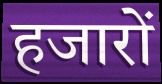
हजारों